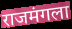
राजमंगला